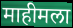
माहीमला